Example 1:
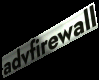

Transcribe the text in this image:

advfirewall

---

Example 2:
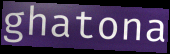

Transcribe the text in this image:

ghatona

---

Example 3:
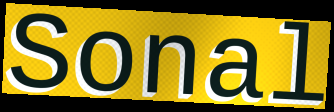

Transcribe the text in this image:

Sonal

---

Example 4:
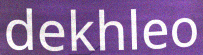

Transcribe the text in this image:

dekhleo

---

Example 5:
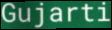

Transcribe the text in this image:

Gujarti